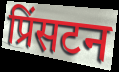
प्रिंसटन